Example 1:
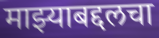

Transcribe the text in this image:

माझ्याबद्दलचा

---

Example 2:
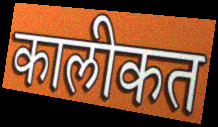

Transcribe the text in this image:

कालीकत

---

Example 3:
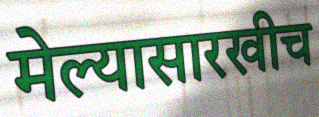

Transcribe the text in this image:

मेल्यासारखीच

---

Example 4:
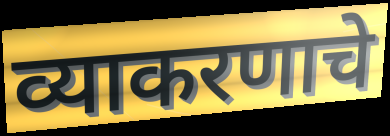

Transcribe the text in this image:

व्याकरणाचे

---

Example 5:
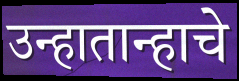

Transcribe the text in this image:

उन्हातान्हाचे